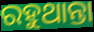
ରହୁଥାନ୍ତା